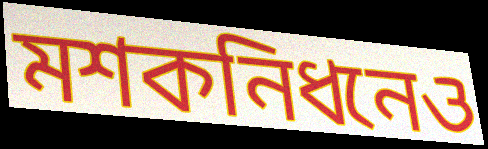
মশকনিধনেও